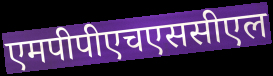
एमपीपीएचएससीएल